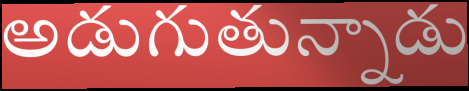
అడుగుతున్నాడు